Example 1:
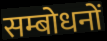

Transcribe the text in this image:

सम्बोधनों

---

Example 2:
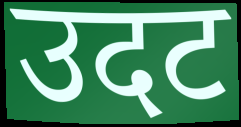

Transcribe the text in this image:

उदट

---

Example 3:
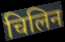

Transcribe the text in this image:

चिलिन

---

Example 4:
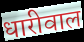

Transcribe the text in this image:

धारीवाल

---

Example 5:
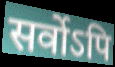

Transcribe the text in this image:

सर्वोऽपि